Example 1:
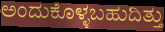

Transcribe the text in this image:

ಅಂದುಕೊಳ್ಳಬಹುದಿತ್ತು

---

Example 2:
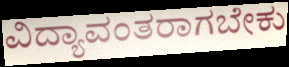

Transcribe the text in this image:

ವಿದ್ಯಾವಂತರಾಗಬೇಕು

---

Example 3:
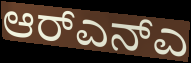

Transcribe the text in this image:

ಆರ್‌ಎನ್ಎ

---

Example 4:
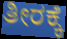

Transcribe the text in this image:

ತೀರಕ್ಕೆ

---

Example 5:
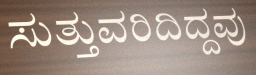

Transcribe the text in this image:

ಸುತ್ತುವರಿದಿದ್ದವು